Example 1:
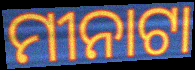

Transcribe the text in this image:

ମୀନାଟା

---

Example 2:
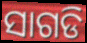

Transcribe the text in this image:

ସାଗଡି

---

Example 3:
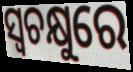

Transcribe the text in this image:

ସ୍ୱଚକ୍ଷୁରେ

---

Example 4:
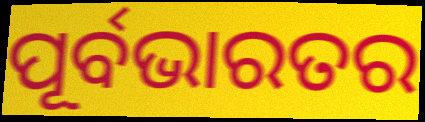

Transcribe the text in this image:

ପୂର୍ବଭାରତର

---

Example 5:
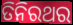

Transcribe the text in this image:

ତିନିରଥର